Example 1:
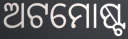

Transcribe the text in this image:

ଅଟମୋଷ୍ଟ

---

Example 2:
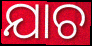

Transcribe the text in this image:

ଯାଚ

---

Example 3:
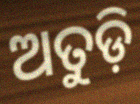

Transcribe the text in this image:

ଅତୁଡ଼ି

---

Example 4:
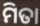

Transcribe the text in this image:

ମିତା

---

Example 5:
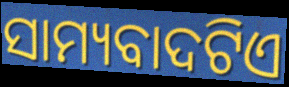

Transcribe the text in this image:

ସାମ୍ୟବାଦଟିଏ